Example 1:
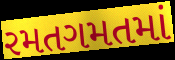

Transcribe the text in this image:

રમતગમતમાં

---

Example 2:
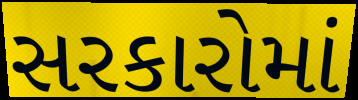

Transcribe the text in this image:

સરકારોમાં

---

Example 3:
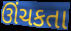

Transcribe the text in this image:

ઊંચકતા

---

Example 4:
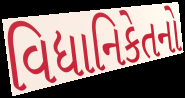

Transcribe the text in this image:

વિદ્યાનિકેતનો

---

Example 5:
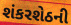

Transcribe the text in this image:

શંકરશેઠની